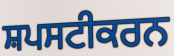
ਸ਼ਪਸਟੀਕਰਨ